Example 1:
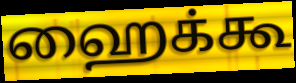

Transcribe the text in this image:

ஹைக்கூ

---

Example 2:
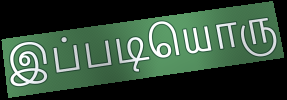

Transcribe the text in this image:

இப்படியொரு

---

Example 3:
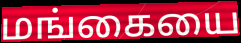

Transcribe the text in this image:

மங்கையை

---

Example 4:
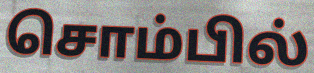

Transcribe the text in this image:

சொம்பில்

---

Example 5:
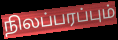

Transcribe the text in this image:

நிலப்பரப்பும்